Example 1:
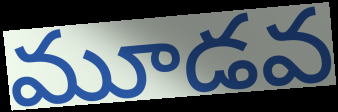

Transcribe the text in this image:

మూడవ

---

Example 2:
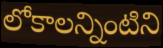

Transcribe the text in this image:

లోకాలన్నింటిని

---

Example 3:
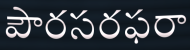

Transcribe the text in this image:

పౌరసరఫరా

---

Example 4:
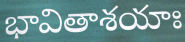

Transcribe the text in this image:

భావితాశయాః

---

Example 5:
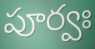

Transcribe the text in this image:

పూర్వః